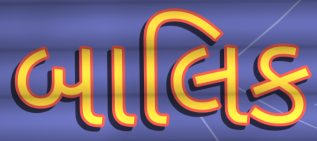
બાલિક